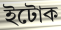
ইটোক